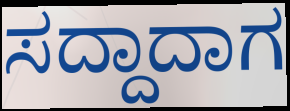
ಸದ್ದಾದಾಗ